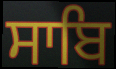
ਸਾਬਿ